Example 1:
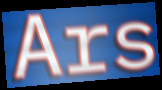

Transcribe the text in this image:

Ars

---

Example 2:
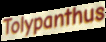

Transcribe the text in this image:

Tolypanthus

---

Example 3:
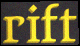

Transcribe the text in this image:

rift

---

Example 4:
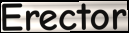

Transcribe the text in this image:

Erector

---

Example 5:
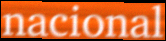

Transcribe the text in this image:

nacional